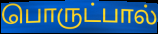
பொருட்பால்